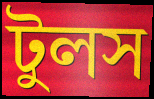
টুলস